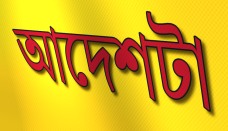
আদেশটা